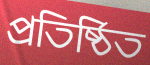
প্রতিষ্ঠিত